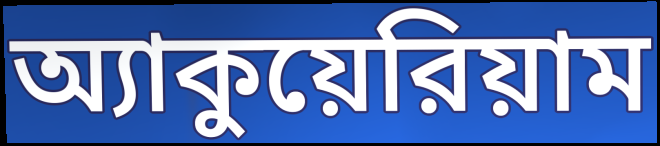
অ্যাকুয়েরিয়াম